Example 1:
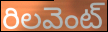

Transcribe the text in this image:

రిలవెంట్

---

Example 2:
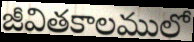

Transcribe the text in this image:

జీవితకాలములో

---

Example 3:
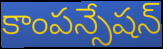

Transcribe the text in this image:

కాంపన్సేషన్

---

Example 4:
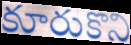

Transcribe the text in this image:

కూరుకొని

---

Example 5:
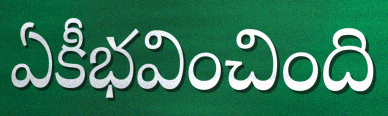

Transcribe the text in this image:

ఏకీభవించింది